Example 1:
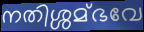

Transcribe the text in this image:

നതിശ്ശമ്ഭവേ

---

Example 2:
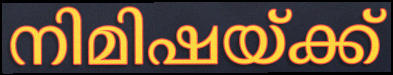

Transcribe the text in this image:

നിമിഷയ്ക്ക്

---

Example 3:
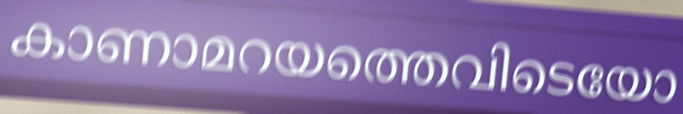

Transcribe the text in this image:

കാണാമറയത്തെവിടെയോ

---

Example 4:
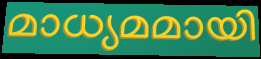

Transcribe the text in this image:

മാധ്യമമായി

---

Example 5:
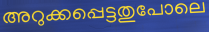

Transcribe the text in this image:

അറുക്കപ്പെട്ടതുപോലെ